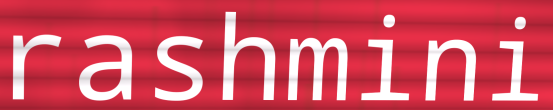
rashmini